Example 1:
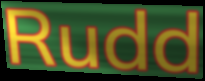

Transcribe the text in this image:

Rudd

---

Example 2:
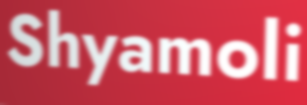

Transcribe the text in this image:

Shyamoli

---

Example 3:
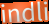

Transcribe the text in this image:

indli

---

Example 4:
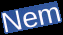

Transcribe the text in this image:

Nem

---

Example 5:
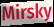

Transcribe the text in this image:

Mirsky